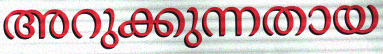
അറുക്കുന്നതായ